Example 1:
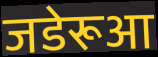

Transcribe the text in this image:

जडेरूआ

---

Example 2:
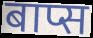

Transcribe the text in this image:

बाप्स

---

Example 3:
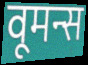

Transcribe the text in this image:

वूमन्स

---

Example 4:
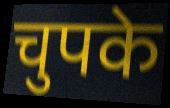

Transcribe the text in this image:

चुपके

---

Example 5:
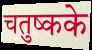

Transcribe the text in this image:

चतुष्कके